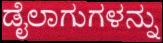
ಡೈಲಾಗುಗಳನ್ನು